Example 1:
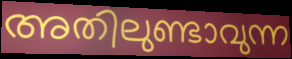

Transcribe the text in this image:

അതിലുണ്ടാവുന്ന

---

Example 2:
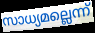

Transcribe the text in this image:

സാധ്യമല്ലെന്ന്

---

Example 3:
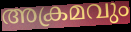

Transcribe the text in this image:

അക്രമവും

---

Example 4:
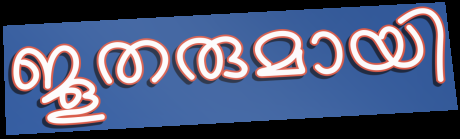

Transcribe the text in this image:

ജൂതരുമായി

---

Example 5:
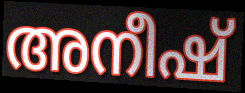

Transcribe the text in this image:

അനീഷ്